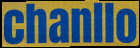
chanllo